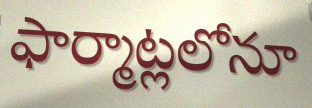
ఫార్మాట్లలోనూ